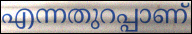
എന്നതുറപ്പാണ്